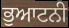
ਭੁਆਟਨੀ